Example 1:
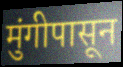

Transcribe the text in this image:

मुंगीपासून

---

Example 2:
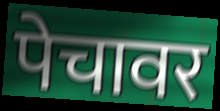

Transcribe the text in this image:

पेचावर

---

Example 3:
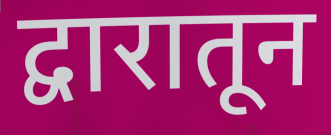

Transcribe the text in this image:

द्वारातून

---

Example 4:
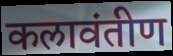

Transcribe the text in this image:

कलावंतीण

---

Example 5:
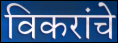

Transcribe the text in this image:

विकरांचे